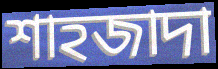
শাহজাদা